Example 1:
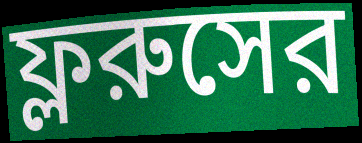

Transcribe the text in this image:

ফ্লরুসের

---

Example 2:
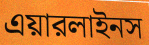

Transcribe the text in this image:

এয়ারলাইনস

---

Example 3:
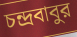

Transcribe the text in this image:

চন্দ্রবাবুর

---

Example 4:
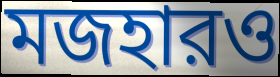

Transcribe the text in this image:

মজহারও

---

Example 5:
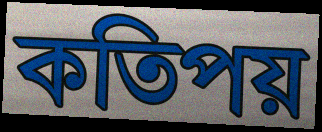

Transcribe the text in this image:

কতিপয়